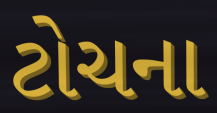
ટોચના